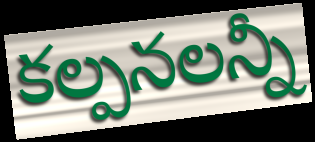
కల్పనలన్నీ